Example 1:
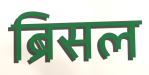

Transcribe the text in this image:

ब्रिसल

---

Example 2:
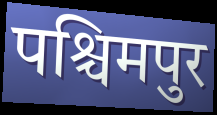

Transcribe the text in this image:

पश्चिमपुर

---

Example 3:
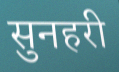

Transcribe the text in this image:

सुनहरी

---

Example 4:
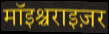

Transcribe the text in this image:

मॉइश्चराइज़र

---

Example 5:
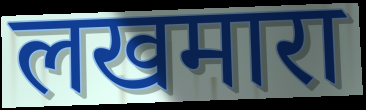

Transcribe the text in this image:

लखमारा